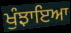
ਖੁੰਝਾਇਆ